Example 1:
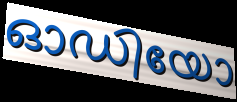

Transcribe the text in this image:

ഓഡിയോ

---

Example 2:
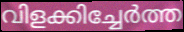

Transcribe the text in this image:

വിളക്കിച്ചേർത്ത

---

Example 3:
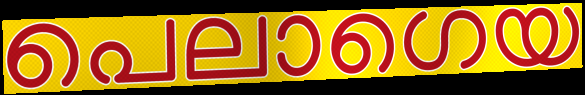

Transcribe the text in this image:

പെലാഗെയ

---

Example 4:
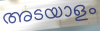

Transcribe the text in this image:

അടയാളം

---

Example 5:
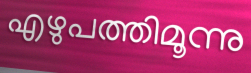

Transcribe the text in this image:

എഴുപത്തിമൂന്നു